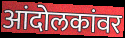
आंदोलकांवर